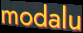
modalu